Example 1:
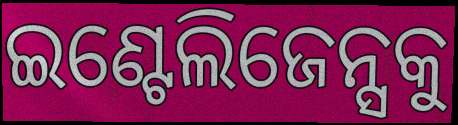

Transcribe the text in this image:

ଇଣ୍ଟେଲିଜେନ୍ସକୁ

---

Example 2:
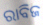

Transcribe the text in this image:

ରାବିଜ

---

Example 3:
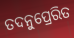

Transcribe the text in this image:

ତଦନୁପ୍ରେରିତ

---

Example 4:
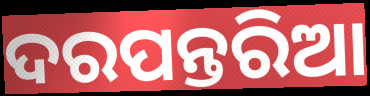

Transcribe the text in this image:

ଦରପନ୍ତରିଆ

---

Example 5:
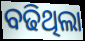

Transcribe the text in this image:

ବଢିଥିଲା